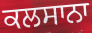
ਕਲਸਾਨਾ